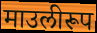
माउलीरूप